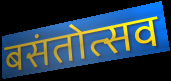
बसंतोत्सव